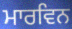
ਮਾਰਵਿਨ